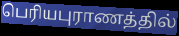
பெரியபுராணத்தில்